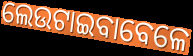
ଲେଉଟାଇବାବେଳେ